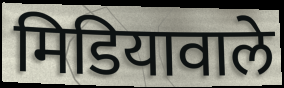
मिडियावाले